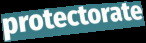
protectorate